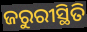
ଜରୁରୀସ୍ଥିତି